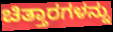
ಚಿತ್ತಾರಗಳನ್ನು